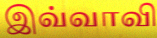
இவ்வாவி